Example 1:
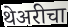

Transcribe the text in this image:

थेअरीचा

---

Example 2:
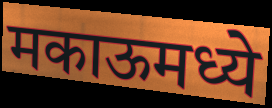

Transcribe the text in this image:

मकाऊमध्ये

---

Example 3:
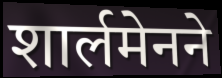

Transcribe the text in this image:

शार्लमेनने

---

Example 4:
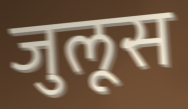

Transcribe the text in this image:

जुलूस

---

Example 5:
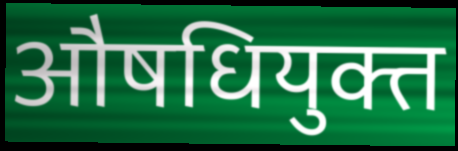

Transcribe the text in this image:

औषधियुक्त